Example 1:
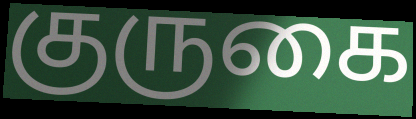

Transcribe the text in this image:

குருகை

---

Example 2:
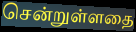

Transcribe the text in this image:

சென்றுள்ளதை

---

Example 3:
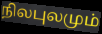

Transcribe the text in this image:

நிலபுலமும்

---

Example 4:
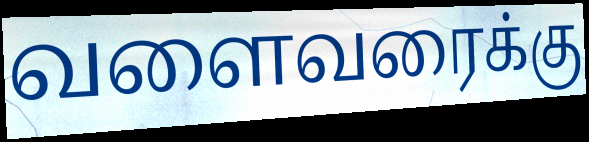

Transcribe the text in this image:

வளைவரைக்கு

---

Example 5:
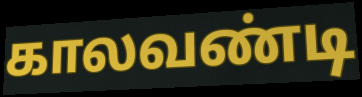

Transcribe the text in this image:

காலவண்டி